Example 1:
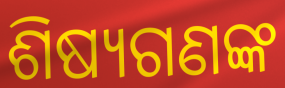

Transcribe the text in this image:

ଶିଷ୍ୟଗଣଙ୍କ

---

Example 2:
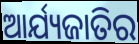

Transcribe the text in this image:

ଆର୍ଯ୍ୟଜାତିର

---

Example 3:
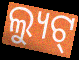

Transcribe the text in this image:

ଲ୍ୟୁଟ୍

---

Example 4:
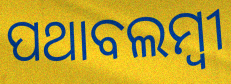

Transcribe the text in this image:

ପଥାବଲମ୍ବୀ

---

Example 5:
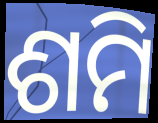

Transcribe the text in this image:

ଶମି